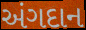
અંગદાન